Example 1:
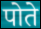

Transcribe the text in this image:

पोते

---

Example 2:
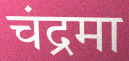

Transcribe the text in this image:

चंद्रमा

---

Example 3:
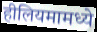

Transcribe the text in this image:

हीलियमामध्ये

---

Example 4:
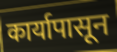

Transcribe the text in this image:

कार्यापासून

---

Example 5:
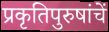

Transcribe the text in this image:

प्रकृतिपुरुषांचें